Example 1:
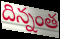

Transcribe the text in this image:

దిన్నంత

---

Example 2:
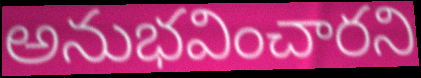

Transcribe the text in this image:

అనుభవించారని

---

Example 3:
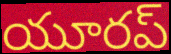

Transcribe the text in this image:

యూరప్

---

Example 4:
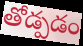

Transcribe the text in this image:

తోడ్పడం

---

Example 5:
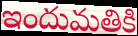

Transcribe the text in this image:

ఇందుమతికి